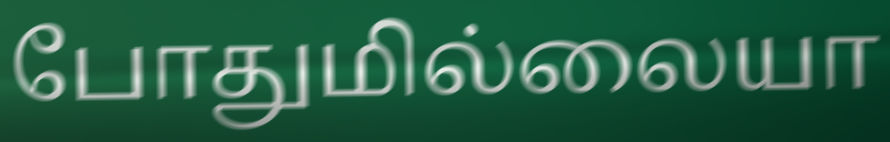
போதுமில்லையா